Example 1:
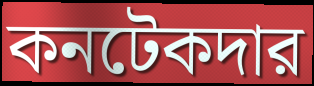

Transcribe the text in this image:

কনটেকদার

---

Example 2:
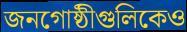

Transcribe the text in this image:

জনগোষ্ঠীগুলিকেও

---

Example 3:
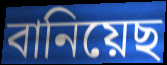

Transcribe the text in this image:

বানিয়েছ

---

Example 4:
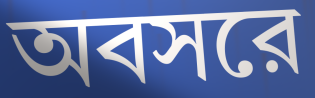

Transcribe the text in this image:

অবসরে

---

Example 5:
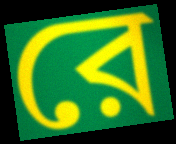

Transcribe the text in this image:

রে